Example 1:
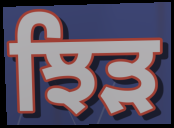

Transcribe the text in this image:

ਝਿੜ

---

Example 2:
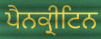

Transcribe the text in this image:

ਪੈਨਕ੍ਰੀਟਿਨ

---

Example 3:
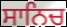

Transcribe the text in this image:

ਸਾਨਿਚ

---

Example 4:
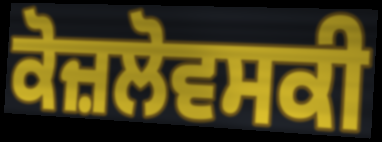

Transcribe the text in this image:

ਕੋਜ਼ਲੋਵਸਕੀ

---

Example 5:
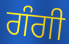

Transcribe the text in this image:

ਗੰਗੀ